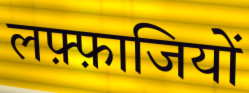
लफ़्फ़ाजियों